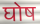
घोष